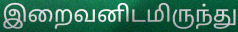
இறைவனிடமிருந்து